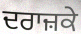
ਦਰਾਜ਼ਕੇ